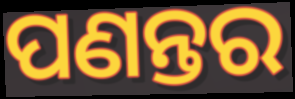
ପଣନ୍ତର